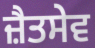
ਜ਼ੈਤਸੇਵ